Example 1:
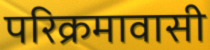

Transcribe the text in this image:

परिक्रमावासी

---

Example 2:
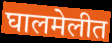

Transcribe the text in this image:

घालमेलीत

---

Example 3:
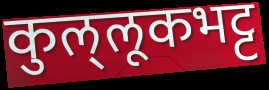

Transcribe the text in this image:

कुल्लूकभट्ट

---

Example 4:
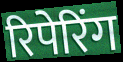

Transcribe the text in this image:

रिपेरिंग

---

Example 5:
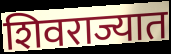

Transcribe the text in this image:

शिवराज्यात